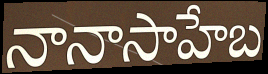
నానాసాహేబ